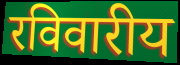
रविवारीय